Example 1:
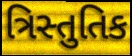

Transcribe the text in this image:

ત્રિસ્તુતિક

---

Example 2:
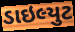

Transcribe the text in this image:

ડાઇલ્યુટ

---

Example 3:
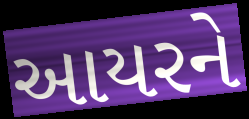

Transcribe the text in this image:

આયરને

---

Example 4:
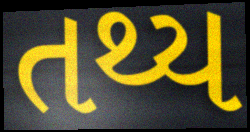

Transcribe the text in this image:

તથ્ય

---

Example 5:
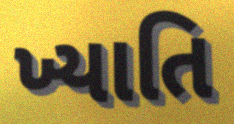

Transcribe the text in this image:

ખ્યાતિ